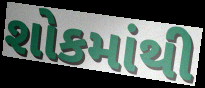
શોકમાંથી